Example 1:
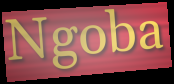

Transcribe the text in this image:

Ngoba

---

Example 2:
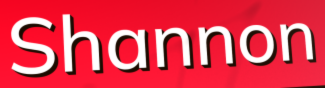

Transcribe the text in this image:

Shannon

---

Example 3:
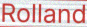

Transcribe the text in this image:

Rolland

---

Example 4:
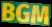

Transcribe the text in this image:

BGM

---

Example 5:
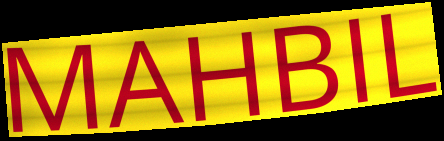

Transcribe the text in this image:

MAHBIL